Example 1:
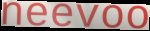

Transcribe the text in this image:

neevoo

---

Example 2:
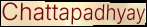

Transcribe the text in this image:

Chattapadhyay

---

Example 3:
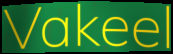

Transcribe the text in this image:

Vakeel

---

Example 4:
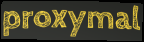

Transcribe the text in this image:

proxymal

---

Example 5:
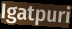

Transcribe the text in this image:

Igatpuri